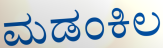
ಮಡಂಕಿಲ